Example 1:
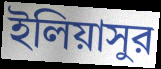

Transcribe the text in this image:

ইলিয়াসুর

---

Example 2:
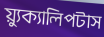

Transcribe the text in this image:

য়্যুক্যালিপটাস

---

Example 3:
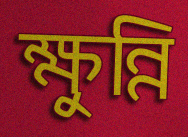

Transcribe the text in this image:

ক্ষুন্নি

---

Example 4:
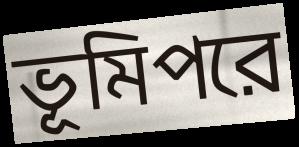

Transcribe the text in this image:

ভূমিপরে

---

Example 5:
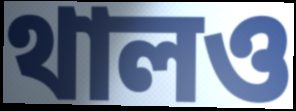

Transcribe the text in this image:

থালও